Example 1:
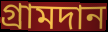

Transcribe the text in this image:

গ্রামদান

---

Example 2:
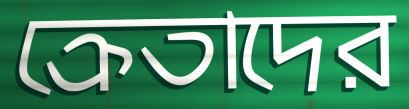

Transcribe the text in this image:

ক্রেতাদের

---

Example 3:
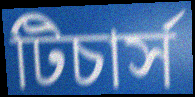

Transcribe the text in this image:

টিচার্স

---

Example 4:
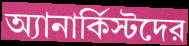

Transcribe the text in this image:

অ্যানার্কিস্টদের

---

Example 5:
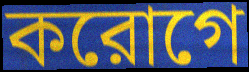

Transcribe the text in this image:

করোগে